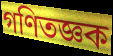
গণিতজ্ঞক